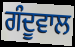
ਗੰਦੂਵਾਲ